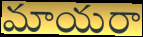
మాయరా